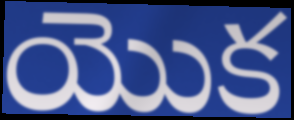
యొక